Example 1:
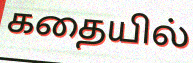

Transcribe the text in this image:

கதையில்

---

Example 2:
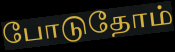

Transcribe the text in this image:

போடுதோம்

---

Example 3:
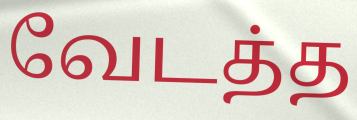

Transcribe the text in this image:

வேடத்த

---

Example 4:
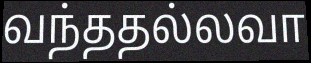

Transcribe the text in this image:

வந்ததல்லவா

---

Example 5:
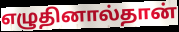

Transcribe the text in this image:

எழுதினால்தான்